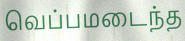
வெப்பமடைந்த